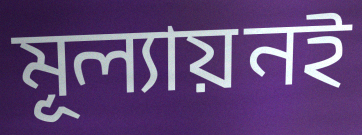
মূল্যায়নই